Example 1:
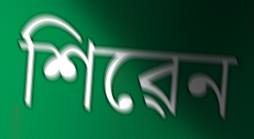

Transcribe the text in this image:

শিৱেন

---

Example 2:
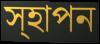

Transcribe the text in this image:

স্হাপন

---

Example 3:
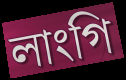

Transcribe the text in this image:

লাংগি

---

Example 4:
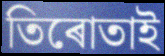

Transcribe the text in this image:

তিৰোতাই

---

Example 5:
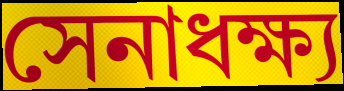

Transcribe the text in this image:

সেনাধক্ষ্য